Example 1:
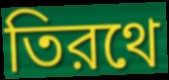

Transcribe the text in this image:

তিরথে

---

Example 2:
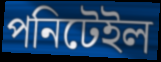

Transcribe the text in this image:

পনিটেইল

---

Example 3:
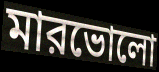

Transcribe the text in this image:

মারভোলো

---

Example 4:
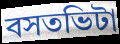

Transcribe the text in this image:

বসতভিটা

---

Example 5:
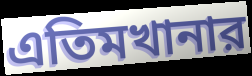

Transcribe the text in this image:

এতিমখানার